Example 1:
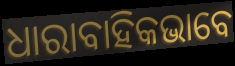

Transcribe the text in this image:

ଧାରାବାହିକଭାବେ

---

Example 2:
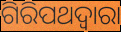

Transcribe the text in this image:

ଗିରିପଥଦ୍ୱାରା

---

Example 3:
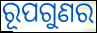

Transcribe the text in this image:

ରୂପଗୁଣର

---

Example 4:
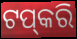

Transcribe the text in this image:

ଟପ୍‌କରି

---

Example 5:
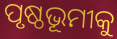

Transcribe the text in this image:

ପୃଷ୍ଠଭୂମୀକୁ